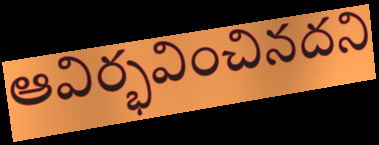
ఆవిర్భవించినదని